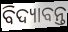
ବିଦ୍ୟାବନ୍ତ